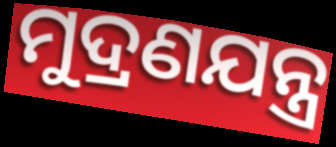
ମୁଦ୍ରଣଯନ୍ତ୍ର